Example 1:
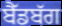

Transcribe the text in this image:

ਬੈੱਡਬੱਗ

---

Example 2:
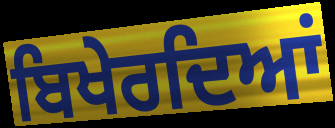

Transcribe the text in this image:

ਬਿਖੇਰਦਿਆਂ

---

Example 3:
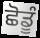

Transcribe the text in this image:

ਛੋਡੂੰ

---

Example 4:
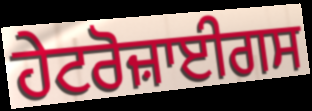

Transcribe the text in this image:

ਹੇਟਰੋਜ਼ਾਈਗਸ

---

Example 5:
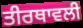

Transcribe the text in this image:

ਤੀਰਥਾਵਲੀ